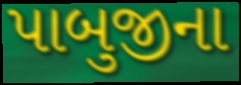
પાબુજીના